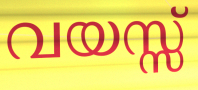
വയസ്സ്